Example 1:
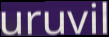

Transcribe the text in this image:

uruvil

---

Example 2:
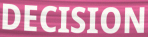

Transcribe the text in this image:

DECISION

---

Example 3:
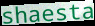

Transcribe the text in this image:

shaesta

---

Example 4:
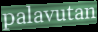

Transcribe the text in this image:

palavutan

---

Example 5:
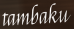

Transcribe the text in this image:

tambaku